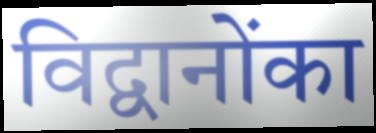
विद्वानोंका